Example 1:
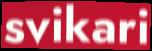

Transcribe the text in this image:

svikari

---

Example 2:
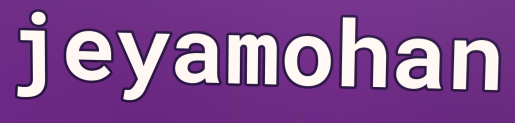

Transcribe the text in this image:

jeyamohan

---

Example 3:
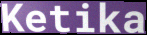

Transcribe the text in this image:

Ketika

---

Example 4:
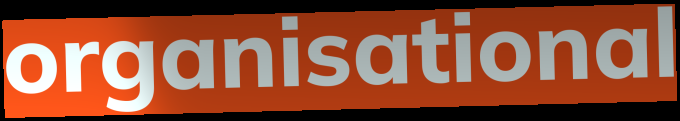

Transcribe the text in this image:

organisational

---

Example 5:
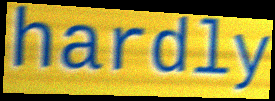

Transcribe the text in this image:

hardly